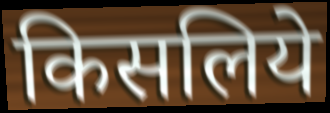
किसलिये